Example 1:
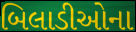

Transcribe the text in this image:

બિલાડીઓના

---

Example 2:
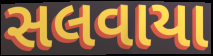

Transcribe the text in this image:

સલવાયા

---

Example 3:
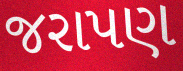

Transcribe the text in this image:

જરાપણ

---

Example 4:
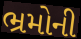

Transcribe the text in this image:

ભ્રમોની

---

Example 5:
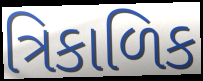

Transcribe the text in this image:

ત્રિકાળિક